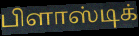
பிளாஸ்டிக்